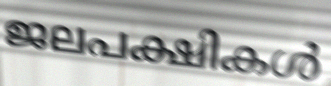
ജലപക്ഷികൾ